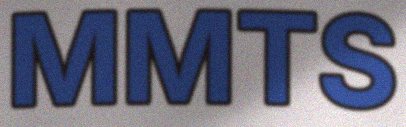
MMTS